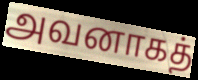
அவனாகத்